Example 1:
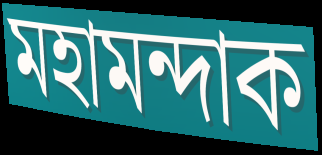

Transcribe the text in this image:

মহামন্দাক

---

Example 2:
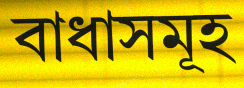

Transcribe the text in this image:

বাধাসমূহ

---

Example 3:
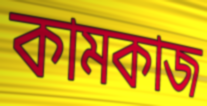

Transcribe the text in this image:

কামকাজ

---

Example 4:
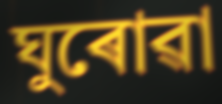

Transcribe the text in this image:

ঘুৰোৱা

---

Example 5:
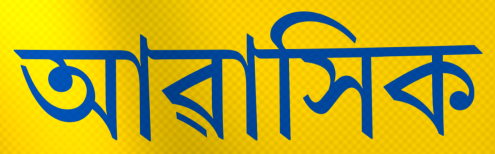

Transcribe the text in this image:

আৱাসিক